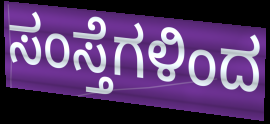
ಸಂಸ್ತೆಗಳಿಂದ